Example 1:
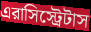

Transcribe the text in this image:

এরাসিস্ট্রেটাস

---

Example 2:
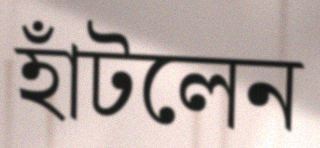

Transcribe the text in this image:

হাঁটলেন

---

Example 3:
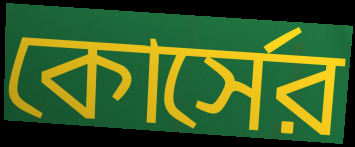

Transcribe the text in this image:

কোর্সের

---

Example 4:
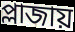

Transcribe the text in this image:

প্লাজায়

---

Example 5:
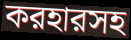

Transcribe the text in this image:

করহারসহ